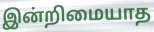
இன்றிமையாத